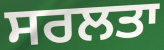
ਸਰਲਤਾ